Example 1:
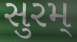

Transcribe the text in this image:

સુરમ્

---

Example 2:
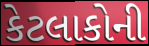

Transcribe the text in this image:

કેટલાકોની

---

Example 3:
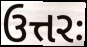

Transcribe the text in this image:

ઉત્તરઃ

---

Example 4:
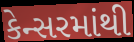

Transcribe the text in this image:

કેન્સરમાંથી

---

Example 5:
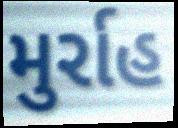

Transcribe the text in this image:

મુર્રાહ